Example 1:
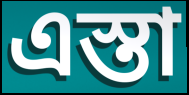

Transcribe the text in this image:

এস্তা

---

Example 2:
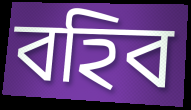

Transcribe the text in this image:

বহিব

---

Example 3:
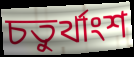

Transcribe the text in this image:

চতুর্থাংশ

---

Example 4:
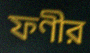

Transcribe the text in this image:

ফণীর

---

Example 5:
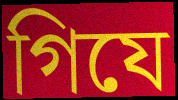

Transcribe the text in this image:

গিযে